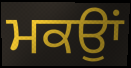
ਮਕਉਾਂ